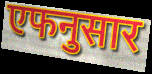
एफनुसार